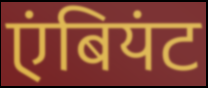
एंबियंट